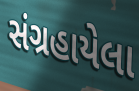
સંગ્રહાયેલા